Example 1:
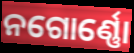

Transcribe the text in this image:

ନଗୋର୍ଣ୍ଣୋ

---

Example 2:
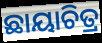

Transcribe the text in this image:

ଛାୟାଚିତ୍ର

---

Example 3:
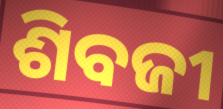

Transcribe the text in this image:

ଶିବଜୀ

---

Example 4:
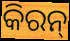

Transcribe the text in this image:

କିରନ୍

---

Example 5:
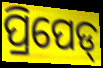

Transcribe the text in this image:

ପ୍ରିପେଡ୍